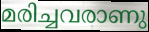
മരിച്ചവരാണു